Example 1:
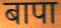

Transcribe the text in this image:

बापा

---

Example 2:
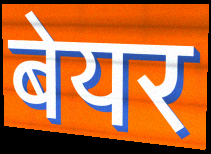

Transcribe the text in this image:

बेयर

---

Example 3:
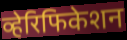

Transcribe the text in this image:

व्हेरिफिकेशन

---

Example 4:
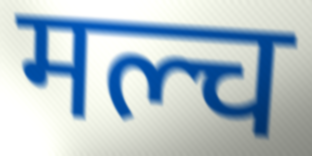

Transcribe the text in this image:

मल्च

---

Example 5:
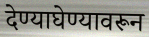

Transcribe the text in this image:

देण्याघेण्यावरून